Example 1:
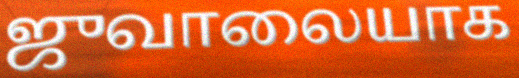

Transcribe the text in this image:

ஜுவாலையாக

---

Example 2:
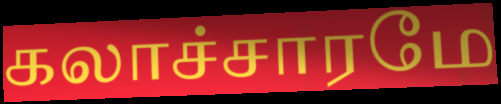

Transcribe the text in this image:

கலாச்சாரமே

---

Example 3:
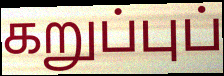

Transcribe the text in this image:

கறுப்புப்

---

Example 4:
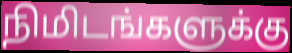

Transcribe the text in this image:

நிமிடங்களுக்கு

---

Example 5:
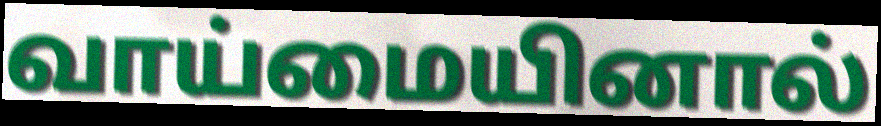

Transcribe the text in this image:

வாய்மையினால்